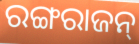
ରଙ୍ଗରାଜନ୍